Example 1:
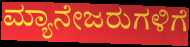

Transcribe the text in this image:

ಮ್ಯಾನೇಜರುಗಳಿಗೆ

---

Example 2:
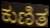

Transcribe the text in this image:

ಕುಣಿತ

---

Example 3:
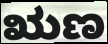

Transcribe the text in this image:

ಋಣ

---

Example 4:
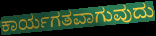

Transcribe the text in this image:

ಕಾರ್ಯಗತವಾಗುವುದು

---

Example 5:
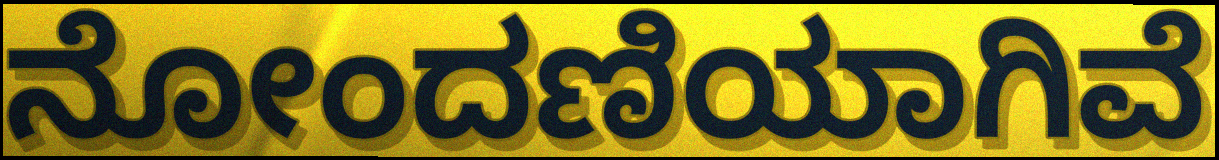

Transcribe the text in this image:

ನೋಂದಣಿಯಾಗಿವೆ